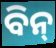
ବିନ୍